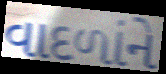
વાદળાંને